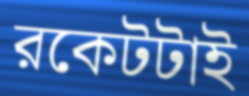
রকেটটাই